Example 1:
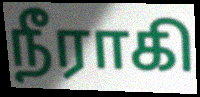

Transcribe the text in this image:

நீராகி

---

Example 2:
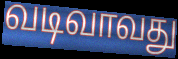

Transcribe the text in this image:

வடிவாவது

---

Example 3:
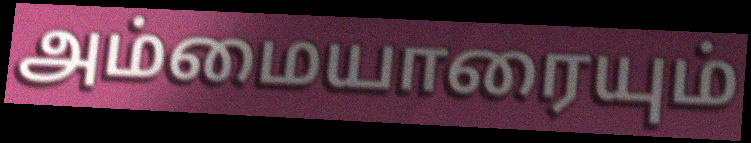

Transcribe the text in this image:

அம்மையாரையும்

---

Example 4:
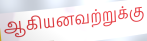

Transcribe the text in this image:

ஆகியனவற்றுக்கு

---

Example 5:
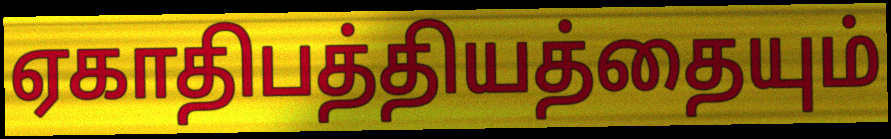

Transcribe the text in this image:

ஏகாதிபத்தியத்தையும்